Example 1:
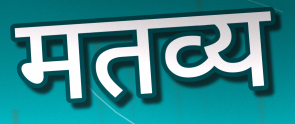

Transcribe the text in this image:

मतव्य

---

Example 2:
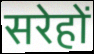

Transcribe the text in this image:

सरेहों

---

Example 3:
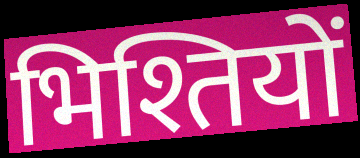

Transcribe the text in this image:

भिश्तियों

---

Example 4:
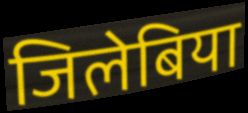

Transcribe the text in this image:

जिलेबिया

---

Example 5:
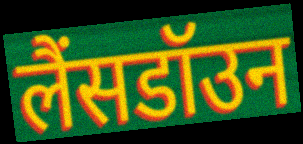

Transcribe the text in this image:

लैंसडॉउन